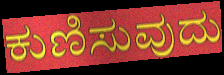
ಕುಣಿಸುವುದು